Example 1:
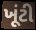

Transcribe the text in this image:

ખૂંટી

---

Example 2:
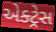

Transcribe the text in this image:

એક્ટ્રેસ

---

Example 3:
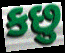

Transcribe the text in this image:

કછુ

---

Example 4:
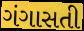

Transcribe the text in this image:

ગંગાસતી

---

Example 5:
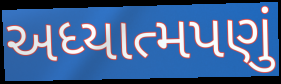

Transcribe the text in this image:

અધ્યાત્મપણું